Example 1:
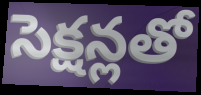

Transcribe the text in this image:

సెక్షన్లతో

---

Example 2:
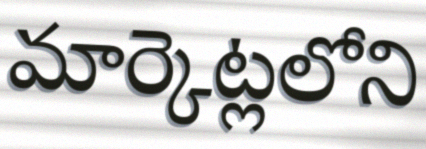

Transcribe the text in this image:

మార్కెట్లలోని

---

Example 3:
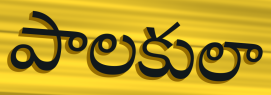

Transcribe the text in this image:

పాలకులా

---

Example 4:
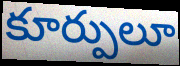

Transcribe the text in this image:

కూర్పులూ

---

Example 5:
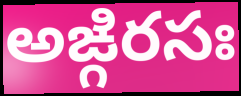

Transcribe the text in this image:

అఙ్గిరసః